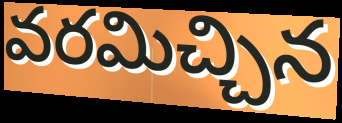
వరమిచ్చిన